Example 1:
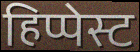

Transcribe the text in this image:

हिप्पेस्ट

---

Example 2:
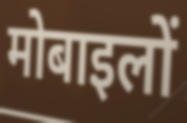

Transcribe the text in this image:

मोबाइलों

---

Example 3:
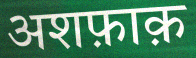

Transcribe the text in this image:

अशफ़ाक़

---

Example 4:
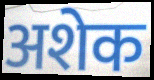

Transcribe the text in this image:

अशेक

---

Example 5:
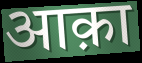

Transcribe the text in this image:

आक़ा